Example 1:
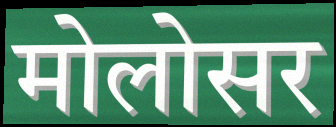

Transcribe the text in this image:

मोलोसर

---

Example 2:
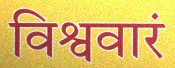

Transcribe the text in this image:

विश्ववारं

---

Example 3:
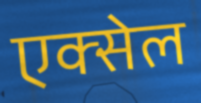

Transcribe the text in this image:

एक्‍सेल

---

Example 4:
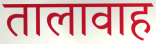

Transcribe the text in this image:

तालावाह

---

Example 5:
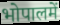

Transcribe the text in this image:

भोपालमें